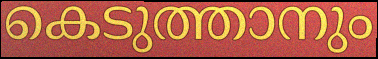
കെടുത്താനും